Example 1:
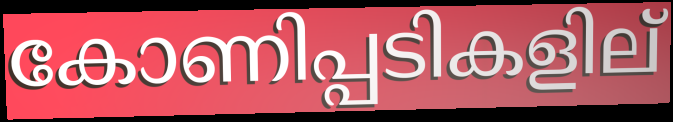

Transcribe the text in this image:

കോണിപ്പടികളില്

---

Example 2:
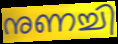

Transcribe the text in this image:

നുണച്ചി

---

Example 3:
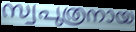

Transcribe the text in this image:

സ്വപുത്രനായ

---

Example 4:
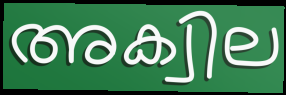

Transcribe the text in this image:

അക്വില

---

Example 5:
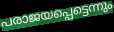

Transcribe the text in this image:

പരാജയപ്പെട്ടെന്നും